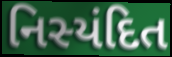
નિસ્યંદિત